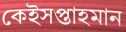
কেইসপ্তাহমান